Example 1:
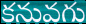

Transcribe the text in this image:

కనువగు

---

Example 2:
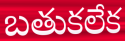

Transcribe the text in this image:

బతుకలేక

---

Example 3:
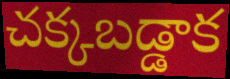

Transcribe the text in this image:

చక్కబడ్డాక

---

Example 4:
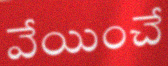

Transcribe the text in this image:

వేయించే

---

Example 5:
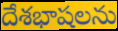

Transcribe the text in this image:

దేశభాషలను